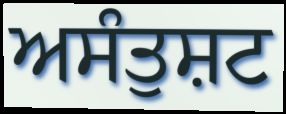
ਅਸੰਤੁਸ਼ਟ